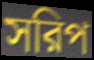
সরিপ